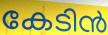
കേടിൻ